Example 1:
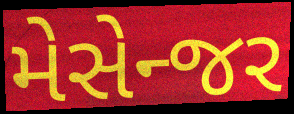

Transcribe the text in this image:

મેસેન્જર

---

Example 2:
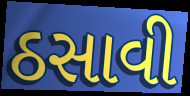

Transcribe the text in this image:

ઠસાવી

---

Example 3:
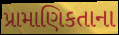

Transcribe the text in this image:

પ્રામાણિકતાના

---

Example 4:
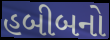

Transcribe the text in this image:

હબીબનો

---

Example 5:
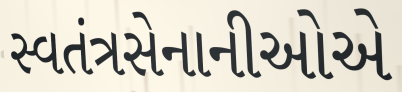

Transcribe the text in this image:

સ્વતંત્રસેનાનીઓએ